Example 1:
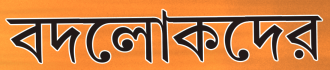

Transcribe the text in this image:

বদলোকদের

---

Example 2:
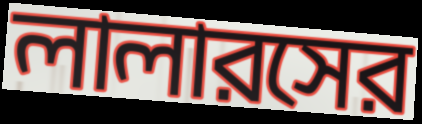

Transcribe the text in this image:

লালারসের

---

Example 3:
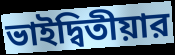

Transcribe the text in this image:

ভাইদ্বিতীয়ার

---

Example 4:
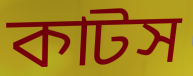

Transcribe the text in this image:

কাটস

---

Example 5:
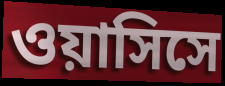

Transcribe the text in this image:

ওয়াসিসে